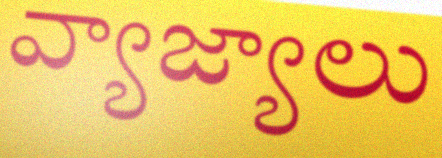
వ్యాజ్యాలు